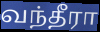
வந்தீரா